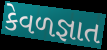
કેવળજ્ઞાત